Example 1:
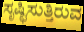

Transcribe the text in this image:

ಸೃಷ್ಟಿಸುತ್ತಿರುವ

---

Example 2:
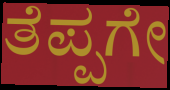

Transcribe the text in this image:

ತೆಪ್ಪಗೇ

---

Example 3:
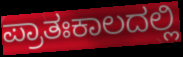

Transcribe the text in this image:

ಪ್ರಾತಃಕಾಲದಲ್ಲಿ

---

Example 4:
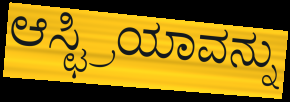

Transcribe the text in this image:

ಆಸ್ಟ್ರಿಯಾವನ್ನು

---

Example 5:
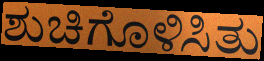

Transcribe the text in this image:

ಶುಚಿಗೊಳಿಸಿತು